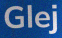
Glej